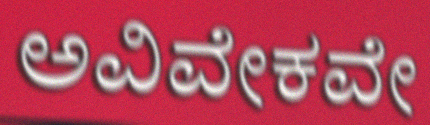
ಅವಿವೇಕವೇ